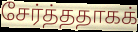
சேர்த்ததாகக்